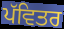
ਪੱਵਿਤਰ